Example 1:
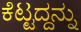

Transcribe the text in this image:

ಕೆಟ್ಟದ್ದನ್ನು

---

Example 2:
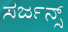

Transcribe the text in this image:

ಸರ್ಜನ್ಸ್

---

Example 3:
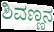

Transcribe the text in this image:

ಶಿವಣ್ಣನ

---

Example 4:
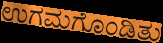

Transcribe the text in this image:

ಉಗಮಗೊಂಡಿತು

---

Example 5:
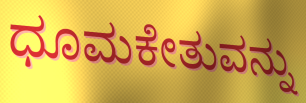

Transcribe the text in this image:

ಧೂಮಕೇತುವನ್ನು